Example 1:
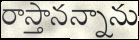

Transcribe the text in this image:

రాస్తానన్నాను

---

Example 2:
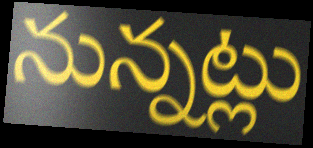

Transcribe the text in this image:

నున్నట్లు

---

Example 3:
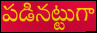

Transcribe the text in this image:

పడినట్టుగా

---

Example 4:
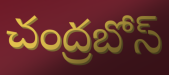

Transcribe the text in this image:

చంద్రబోస్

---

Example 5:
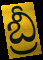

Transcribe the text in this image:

బ్రీ